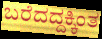
ಬರೆದದ್ದಕ್ಕಿಂತ